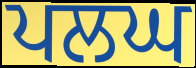
ਪਲਘ